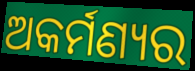
ଅକର୍ମଣ୍ୟର